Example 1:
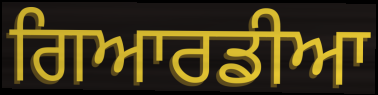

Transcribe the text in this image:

ਗਿਆਰਡੀਆ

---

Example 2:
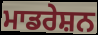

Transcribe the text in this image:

ਮਾਡਰੇਸ਼ਨ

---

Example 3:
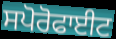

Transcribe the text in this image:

ਸਪੋਰੋਫਾਈਟ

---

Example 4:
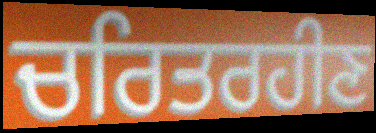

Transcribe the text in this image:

ਚਰਿਤਰਹੀਣ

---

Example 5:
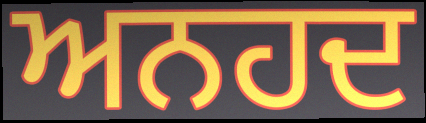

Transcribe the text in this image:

ਅਨਹਦ